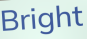
Bright